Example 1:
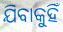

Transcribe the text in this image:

ଯିବାକୁହିଁ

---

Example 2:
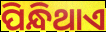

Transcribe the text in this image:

ପିନ୍ଧିଥାଏ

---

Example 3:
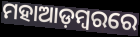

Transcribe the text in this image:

ମହାଆଡ଼ମ୍ୱରରେ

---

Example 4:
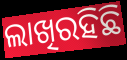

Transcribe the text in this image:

ଲାଖିରହିଛି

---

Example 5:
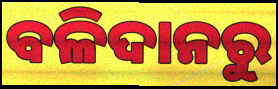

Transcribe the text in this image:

ବଳିଦାନରୁ